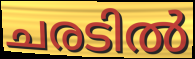
ചരടിൽ